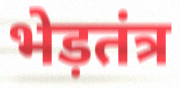
भेड़तंत्र